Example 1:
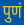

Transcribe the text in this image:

पुणं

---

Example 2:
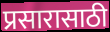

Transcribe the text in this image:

प्रसारासाठी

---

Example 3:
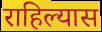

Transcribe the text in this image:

राहिल्यास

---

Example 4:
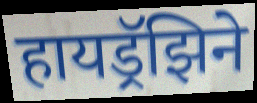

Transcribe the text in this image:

हायड्रॅझिने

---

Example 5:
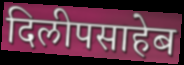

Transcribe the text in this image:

दिलीपसाहेब